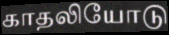
காதலியோடு